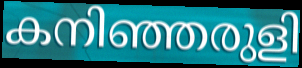
കനിഞ്ഞരുളി